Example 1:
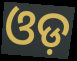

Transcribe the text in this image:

ଓଡ଼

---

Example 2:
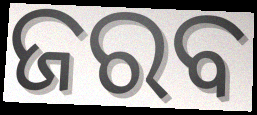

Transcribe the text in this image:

ଜରବ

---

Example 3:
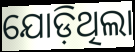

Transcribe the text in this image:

ଯୋଡ଼ିଥିଲା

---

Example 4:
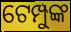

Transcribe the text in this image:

ଟେମ୍ପୁଙ୍କ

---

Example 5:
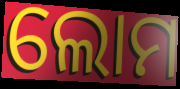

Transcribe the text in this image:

ଲୋମ